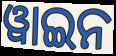
ୱାଇନ